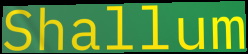
Shallum